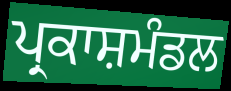
ਪ੍ਰਕਾਸ਼ਮੰਡਲ